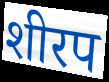
शीरप